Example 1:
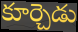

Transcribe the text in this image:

కూర్చెడు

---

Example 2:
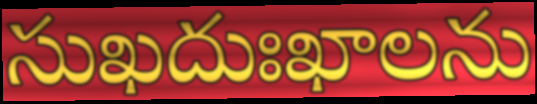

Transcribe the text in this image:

సుఖదుఃఖాలను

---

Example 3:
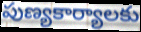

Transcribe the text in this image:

పుణ్యకార్యాలకు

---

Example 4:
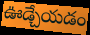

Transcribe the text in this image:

ఊడ్చేయడం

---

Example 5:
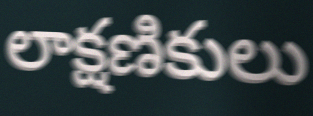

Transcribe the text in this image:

లాక్షణికులు